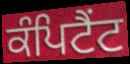
ਕੰਪਿਟੈਂਟ